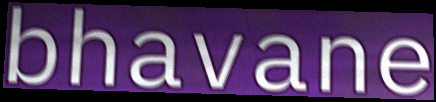
bhavane